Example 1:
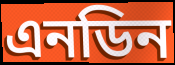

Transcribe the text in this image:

এনডিন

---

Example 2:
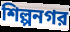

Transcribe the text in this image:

শিল্পনগর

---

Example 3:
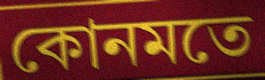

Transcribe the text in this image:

কোনমতে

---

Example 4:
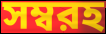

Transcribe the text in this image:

সম্বরহ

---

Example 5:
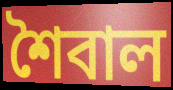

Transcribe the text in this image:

শৈবাল